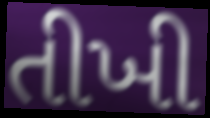
તીખી